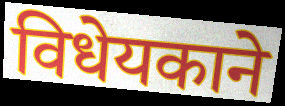
विधेयकाने